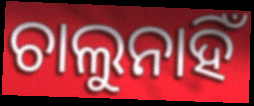
ଚାଲୁନାହିଁ